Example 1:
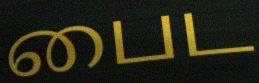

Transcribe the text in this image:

பைட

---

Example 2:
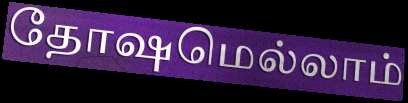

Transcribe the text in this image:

தோஷமெல்லாம்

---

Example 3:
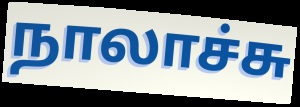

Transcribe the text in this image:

நாலாச்சு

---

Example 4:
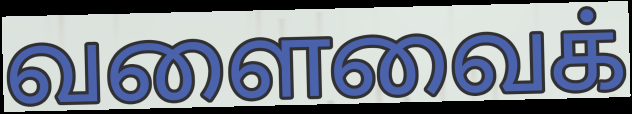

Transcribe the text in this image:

வளைவைக்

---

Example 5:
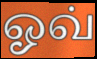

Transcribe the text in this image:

ஓவ்